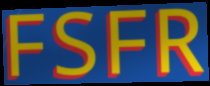
FSFR